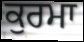
ਕੁਰਮਾ